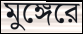
মুঙ্গেরে